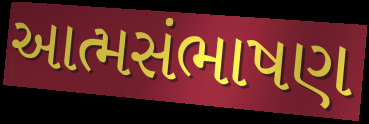
આત્મસંભાષણ